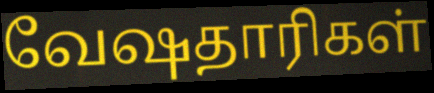
வேஷதாரிகள்